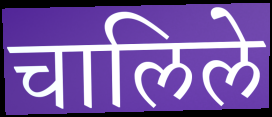
चालिले